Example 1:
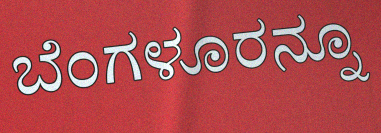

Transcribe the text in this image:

ಬೆಂಗಳೂರನ್ನೂ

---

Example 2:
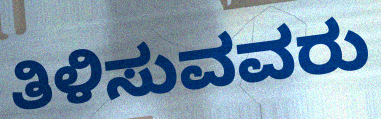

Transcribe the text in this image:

ತಿಳಿಸುವವರು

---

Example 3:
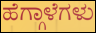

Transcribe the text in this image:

ಹೆಗ್ಗಾಳೆಗಳು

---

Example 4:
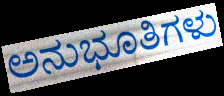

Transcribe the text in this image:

ಅನುಭೂತಿಗಳು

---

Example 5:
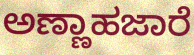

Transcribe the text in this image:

ಅಣ್ಣಾಹಜಾರೆ